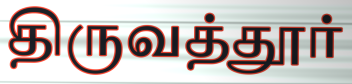
திருவத்தூர்